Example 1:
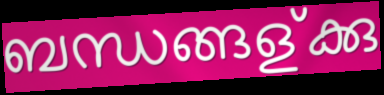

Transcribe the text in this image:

ബന്ധങ്ങള്ക്കു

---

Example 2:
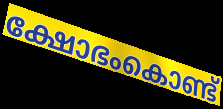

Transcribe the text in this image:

ക്ഷോഭംകൊണ്ട്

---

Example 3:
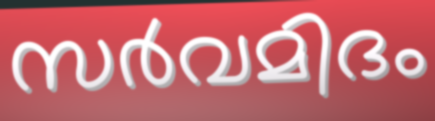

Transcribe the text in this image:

സർവമിദം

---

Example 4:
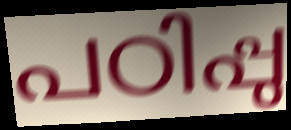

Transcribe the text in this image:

പഠിപ്പു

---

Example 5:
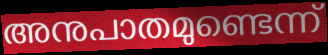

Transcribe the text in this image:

അനുപാതമുണ്ടെന്ന്